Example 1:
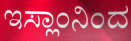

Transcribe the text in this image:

ಇಸ್ಲಾಂನಿಂದ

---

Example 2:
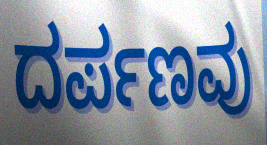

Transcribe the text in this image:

ದರ್ಪಣವು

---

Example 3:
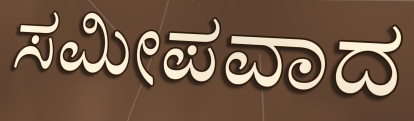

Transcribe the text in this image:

ಸಮೀಪವಾದ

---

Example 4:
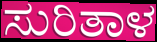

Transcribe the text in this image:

ಸುರಿತಾಳ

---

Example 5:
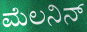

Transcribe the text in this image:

ಮೆಲನಿನ್